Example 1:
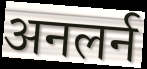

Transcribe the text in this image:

अनलर्न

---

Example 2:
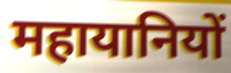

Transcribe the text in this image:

महायानियों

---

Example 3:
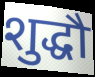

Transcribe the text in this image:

शुद्धौ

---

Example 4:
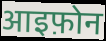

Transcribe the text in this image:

आइफ़ोन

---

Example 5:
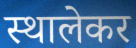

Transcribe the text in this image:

स्थालेकर